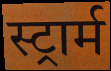
स्ट्रार्म